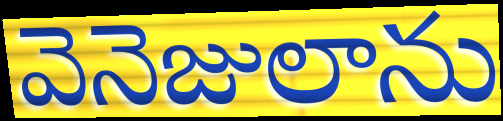
వెనెజులాను